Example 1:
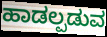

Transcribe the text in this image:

ಹಾಡಲ್ಪಡುವ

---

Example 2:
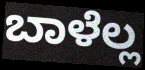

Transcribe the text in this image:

ಬಾಳೆಲ್ಲ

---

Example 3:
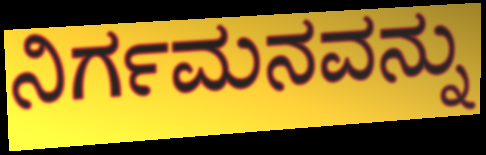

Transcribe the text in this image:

ನಿರ್ಗಮನವನ್ನು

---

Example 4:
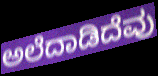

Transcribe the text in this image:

ಅಲೆದಾಡಿದೆವು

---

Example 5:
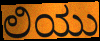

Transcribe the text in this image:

ಲಿಯು